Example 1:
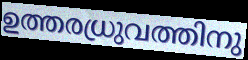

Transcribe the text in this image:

ഉത്തരധ്രുവത്തിനു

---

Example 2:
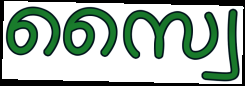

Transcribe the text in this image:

സ്വൈ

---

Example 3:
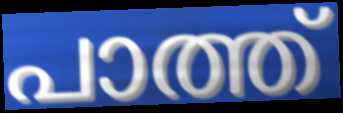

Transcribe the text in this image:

പാത്ത്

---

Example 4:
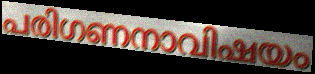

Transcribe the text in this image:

പരിഗണനാവിഷയം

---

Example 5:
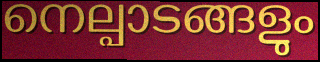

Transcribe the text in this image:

നെല്പാടങ്ങളും